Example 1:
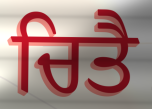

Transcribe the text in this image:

ਚਿਤੈ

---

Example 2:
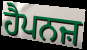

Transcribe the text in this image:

ਹੈਪਨਜ਼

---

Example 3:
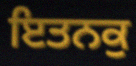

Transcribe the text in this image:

ਇਤਨਕੁ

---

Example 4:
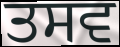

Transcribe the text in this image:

ਤਸਵ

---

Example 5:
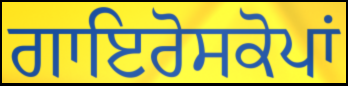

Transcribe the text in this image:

ਗਾਇਰੋਸਕੋਪਾਂ